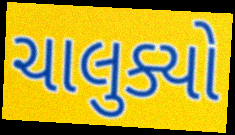
ચાલુક્યો